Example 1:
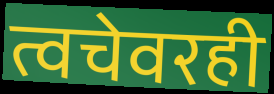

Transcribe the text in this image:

त्वचेवरही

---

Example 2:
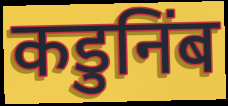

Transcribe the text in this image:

कडुनिंब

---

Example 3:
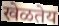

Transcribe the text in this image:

खेळतेय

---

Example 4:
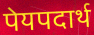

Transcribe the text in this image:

पेयपदार्थ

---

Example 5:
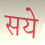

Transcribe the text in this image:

सये